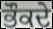
ਭੌਕਦੇ